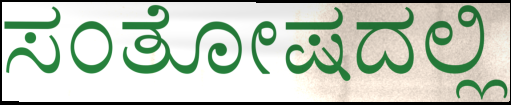
ಸಂತೋಷದಲ್ಲಿ